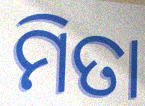
ମିତା